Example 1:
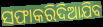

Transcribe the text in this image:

ସଫାକରିଦିଆଯିବ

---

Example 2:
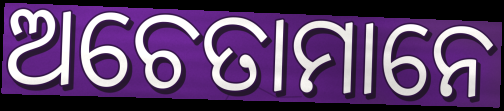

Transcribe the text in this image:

ଅଚେତାମାନେ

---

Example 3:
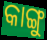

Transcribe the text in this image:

କାଙ୍ଗୁ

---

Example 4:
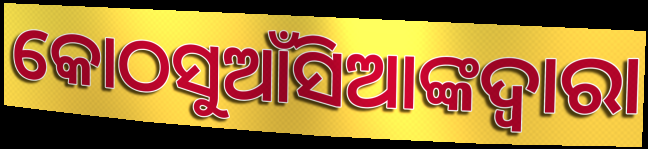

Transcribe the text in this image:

କୋଠସୁଆଁସିଆଙ୍କଦ୍ବାରା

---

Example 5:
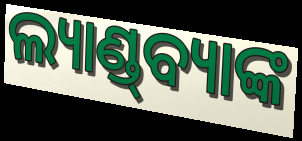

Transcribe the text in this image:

ଲ୍ୟାଣ୍ଡ୍‌ବ୍ୟାଙ୍କ